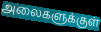
அலைகளுக்குள்